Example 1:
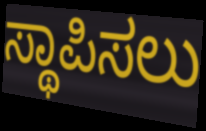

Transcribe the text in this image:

ಸ್ಥಾಪಿಸಲು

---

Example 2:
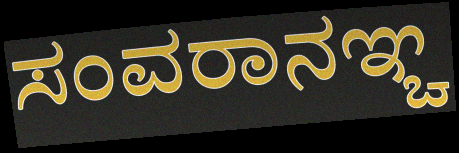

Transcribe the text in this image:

ಸಂವರಾನಞ್ಚ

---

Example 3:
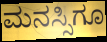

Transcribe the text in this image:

ಮನಸ್ಸಿಗೂ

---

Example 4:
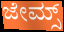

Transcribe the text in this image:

ಜೇಮ್ಸ್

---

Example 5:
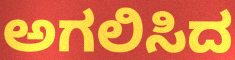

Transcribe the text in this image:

ಅಗಲಿಸಿದ